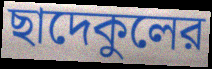
ছাদেকুলের